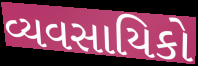
વ્યવસાયિકો